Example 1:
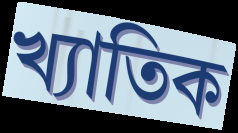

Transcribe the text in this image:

খ্যাতিক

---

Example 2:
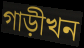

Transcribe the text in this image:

গাড়ীখন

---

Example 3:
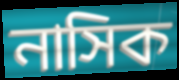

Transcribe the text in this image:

নাসিক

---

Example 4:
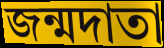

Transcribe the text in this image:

জন্মদাতা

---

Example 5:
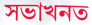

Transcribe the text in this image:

সভাখনত